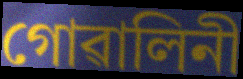
গোৱালিনী